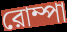
রোম্পা